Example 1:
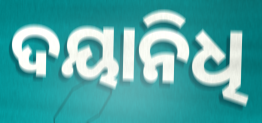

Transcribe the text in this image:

ଦୟାନିଧି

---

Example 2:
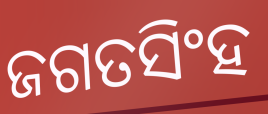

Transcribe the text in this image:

ଜଗତସିଂହ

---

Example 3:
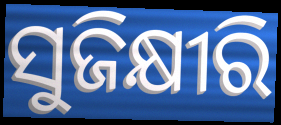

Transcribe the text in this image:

ସୁଜିକ୍ଷୀରି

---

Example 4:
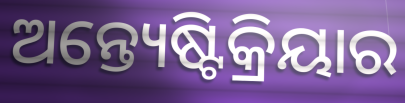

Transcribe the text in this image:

ଅନ୍ତ୍ୟେଷ୍ଟିକ୍ରିୟାର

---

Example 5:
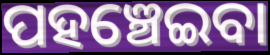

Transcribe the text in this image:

ପହଞ୍ଚେଇବା